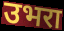
उभरा